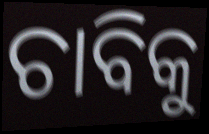
ଚାବିକୁ